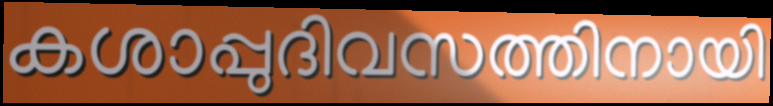
കശാപ്പുദിവസത്തിനായി